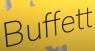
Buffett